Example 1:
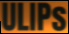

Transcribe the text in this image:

ULIPs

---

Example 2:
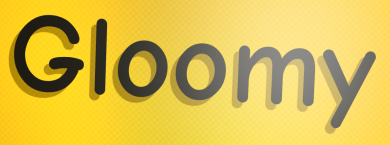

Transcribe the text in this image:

Gloomy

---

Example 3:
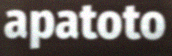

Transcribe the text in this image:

apatoto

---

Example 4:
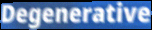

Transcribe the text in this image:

Degenerative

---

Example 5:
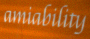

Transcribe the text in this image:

amiability